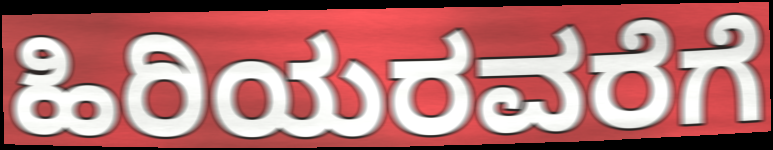
ಹಿರಿಯರವರೆಗೆ